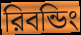
রিবন্ডিং